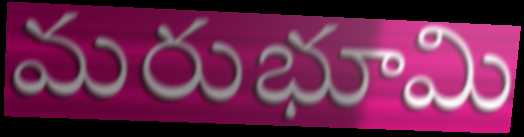
మరుభూమి